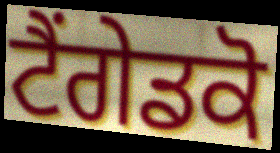
ਟੈਂਗੇਡਕੋ